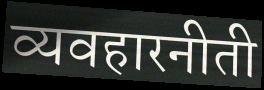
व्यवहारनीती